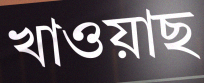
খাওয়াছ